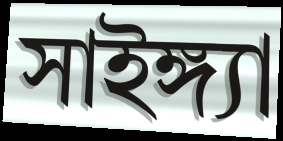
সাইঙ্গ্যা